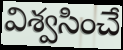
విశ్వసించే